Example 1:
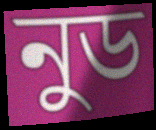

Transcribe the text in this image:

নুড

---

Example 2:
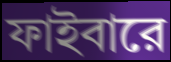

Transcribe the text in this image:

ফাইবারে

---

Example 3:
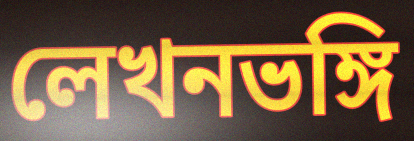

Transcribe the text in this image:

লেখনভঙ্গি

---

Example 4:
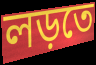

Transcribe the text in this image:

লড়তে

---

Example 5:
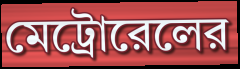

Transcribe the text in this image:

মেট্রোরেলের